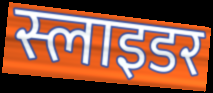
स्लाइडर